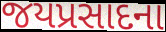
જયપ્રસાદના